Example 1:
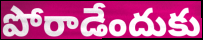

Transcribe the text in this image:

పోరాడేందుకు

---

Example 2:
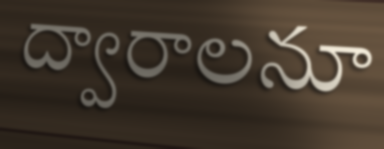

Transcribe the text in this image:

ద్వారాలనూ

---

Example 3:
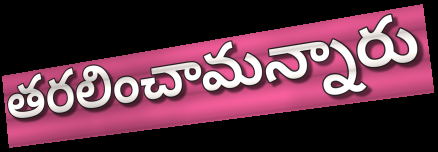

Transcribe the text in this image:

తరలించామన్నారు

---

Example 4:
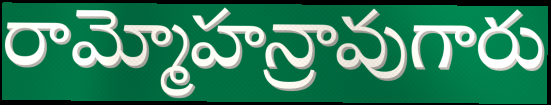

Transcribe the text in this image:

రామ్మోహన్రావుగారు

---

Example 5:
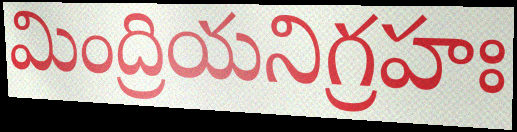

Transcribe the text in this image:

మింద్రియనిగ్రహః